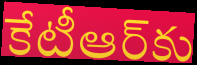
కేటీఆర్‌కు